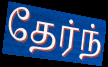
தேர்ந்